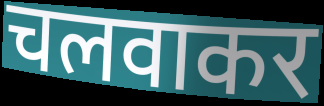
चलवाकर